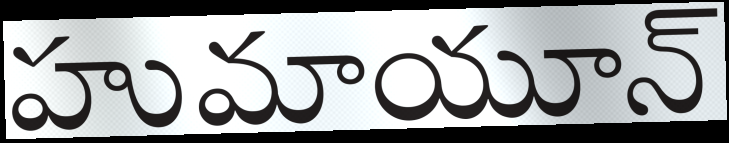
హుమాయూన్